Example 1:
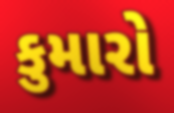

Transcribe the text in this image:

કુમારો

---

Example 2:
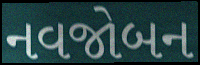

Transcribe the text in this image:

નવજોબન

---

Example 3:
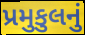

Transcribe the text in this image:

પ્રમુકુલનું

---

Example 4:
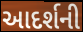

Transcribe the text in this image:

આદર્શની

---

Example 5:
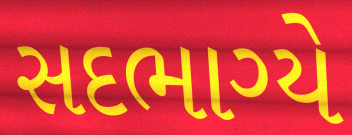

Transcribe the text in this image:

સદભાગ્યે